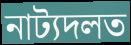
নাট্যদলত